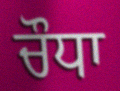
ਚੌਧਾ